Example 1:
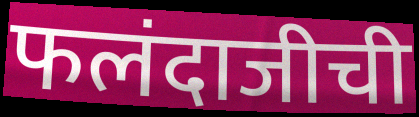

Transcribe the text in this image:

फलंदाजीची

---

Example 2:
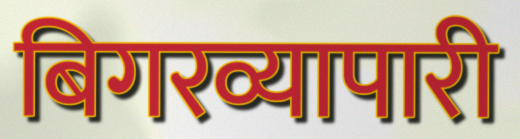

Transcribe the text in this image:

बिगरव्यापारी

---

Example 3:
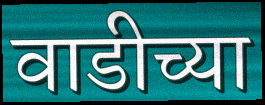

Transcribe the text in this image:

वाडीच्या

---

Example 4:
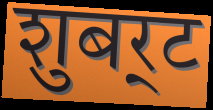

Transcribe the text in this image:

शुबर्ट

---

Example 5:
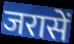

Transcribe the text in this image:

जरासें